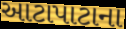
આટાપાટાના